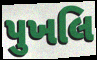
પુખલિ